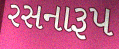
રસનારૂપ